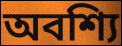
অবশ্যি